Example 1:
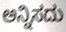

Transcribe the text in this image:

ಅನ್ನಿಸದು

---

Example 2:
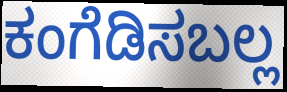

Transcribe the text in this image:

ಕಂಗೆಡಿಸಬಲ್ಲ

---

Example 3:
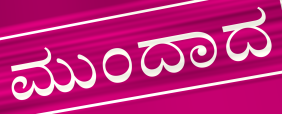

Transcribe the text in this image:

ಮುಂದಾದ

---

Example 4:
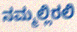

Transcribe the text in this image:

ನಮ್ಮಲ್ಲಿರಲಿ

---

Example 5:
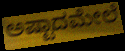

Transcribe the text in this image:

ಅಷ್ಟಾದಮೇಲೆ